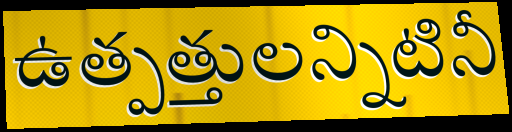
ఉత్పత్తులన్నిటినీ